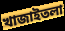
খাজাইতলা